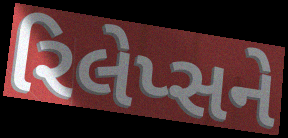
રિલેપ્સને